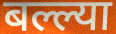
बल्ल्या